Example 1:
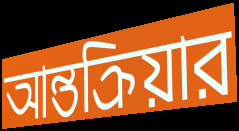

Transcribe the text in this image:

আন্তক্রিয়ার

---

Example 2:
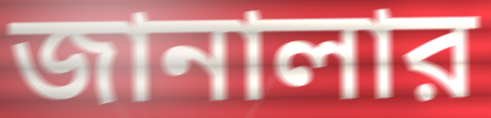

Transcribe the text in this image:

জানালার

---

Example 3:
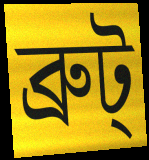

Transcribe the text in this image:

ব্রুট্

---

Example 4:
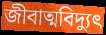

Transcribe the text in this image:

জীবাত্মবিদ্যুৎ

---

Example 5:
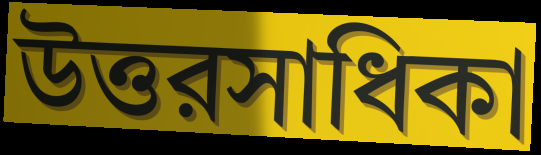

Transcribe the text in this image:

উত্তরসাধিকা